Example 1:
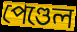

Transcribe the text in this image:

পেণ্ডেল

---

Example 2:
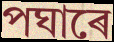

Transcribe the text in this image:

পঘাৰে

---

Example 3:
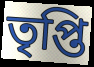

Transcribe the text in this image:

তৃপ্তি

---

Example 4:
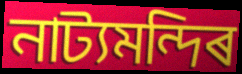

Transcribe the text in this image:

নাট্যমন্দিৰ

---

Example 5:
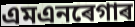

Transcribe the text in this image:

এমএনৰেগাৰ